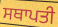
ਸਥਾਪਤੀ